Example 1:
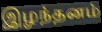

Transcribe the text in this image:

இழந்தனம்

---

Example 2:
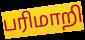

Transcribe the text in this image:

பரிமாறி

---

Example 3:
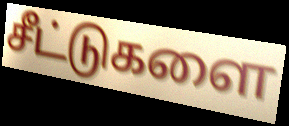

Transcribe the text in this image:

சீட்டுகளை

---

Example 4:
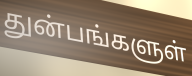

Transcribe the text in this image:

துன்பங்களுள்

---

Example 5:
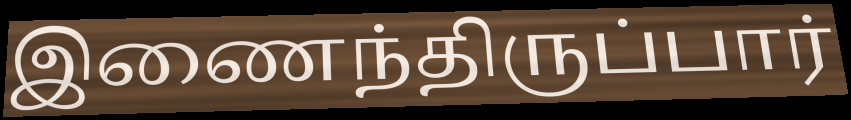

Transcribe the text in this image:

இணைந்திருப்பார்